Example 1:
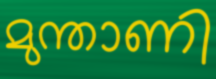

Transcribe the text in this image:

മുന്താണി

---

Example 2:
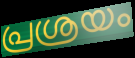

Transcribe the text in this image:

പ്രശ്രയം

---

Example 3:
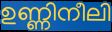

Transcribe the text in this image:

ഉണ്ണിനീലി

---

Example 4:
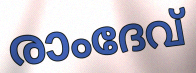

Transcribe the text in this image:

രാംദേവ്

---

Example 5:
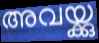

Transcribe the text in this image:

അവയ്ക്കു